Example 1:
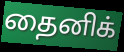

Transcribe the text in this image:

தைனிக்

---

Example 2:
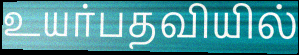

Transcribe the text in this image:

உயர்பதவியில்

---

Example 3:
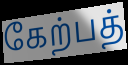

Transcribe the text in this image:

கேற்பத்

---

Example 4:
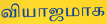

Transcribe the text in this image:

வியாஜமாக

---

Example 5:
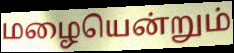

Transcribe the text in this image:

மழையென்றும்